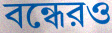
বন্ধেরও